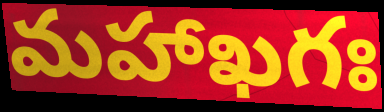
మహాఖగః